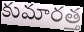
కుమారత్త